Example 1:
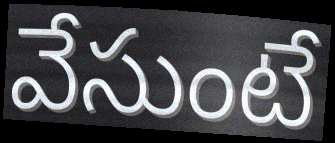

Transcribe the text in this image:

వేసుంటే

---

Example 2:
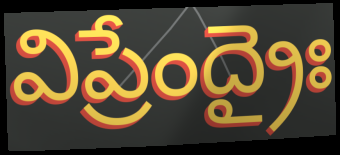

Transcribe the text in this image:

విప్రేంద్రైః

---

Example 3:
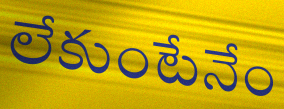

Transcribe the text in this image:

లేకుంటేనేం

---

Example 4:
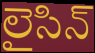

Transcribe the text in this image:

లైసిన్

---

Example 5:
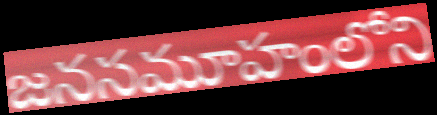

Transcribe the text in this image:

జనసమూహంలోని